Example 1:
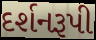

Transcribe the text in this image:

દર્શનરૂપી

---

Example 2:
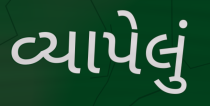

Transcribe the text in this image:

વ્યાપેલું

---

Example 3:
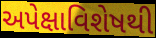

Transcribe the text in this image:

અપેક્ષાવિશેષથી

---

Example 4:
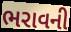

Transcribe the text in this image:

ભરાવની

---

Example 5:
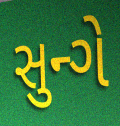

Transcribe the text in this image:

સુન્ગે